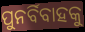
ପୁନର୍ବିବାହକୁ